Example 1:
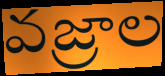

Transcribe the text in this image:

వజ్రాల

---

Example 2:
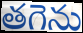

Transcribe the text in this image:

తగెను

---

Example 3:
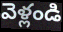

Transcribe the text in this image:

వెళ్లండి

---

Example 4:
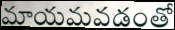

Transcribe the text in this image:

మాయమవడంతో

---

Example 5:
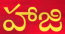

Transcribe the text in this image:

హాజి